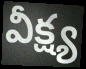
వీక్ష్య